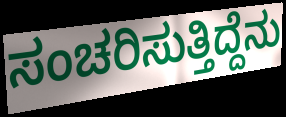
ಸಂಚರಿಸುತ್ತಿದ್ದೆನು